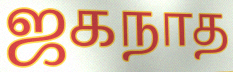
ஜகநாத